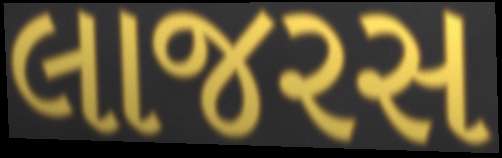
લાજરસ